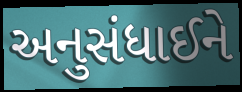
અનુસંધાઈને